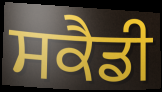
ਸਕੈਡੀ